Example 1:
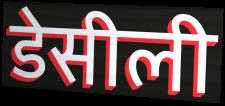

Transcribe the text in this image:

डेसीली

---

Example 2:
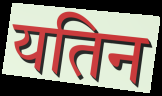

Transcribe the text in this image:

यतिन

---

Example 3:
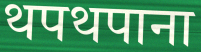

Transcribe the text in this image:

थपथपाना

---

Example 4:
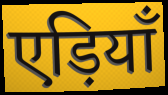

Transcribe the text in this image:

एड़ियाँ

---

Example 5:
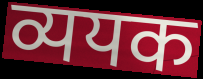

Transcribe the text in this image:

व्ययक